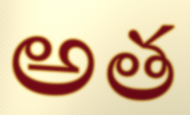
అత